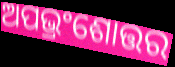
ଅପଭ୍ରଂଶୋତ୍ତର